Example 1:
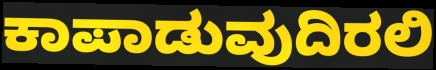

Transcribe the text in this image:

ಕಾಪಾಡುವುದಿರಲಿ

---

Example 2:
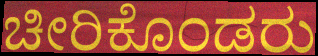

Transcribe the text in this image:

ಚೀರಿಕೊಂಡರು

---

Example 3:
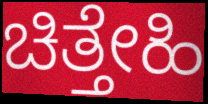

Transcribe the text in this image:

ಚಿತ್ತೇಹಿ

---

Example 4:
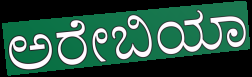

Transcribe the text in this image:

ಅರೇಬಿಯಾ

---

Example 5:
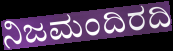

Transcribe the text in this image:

ನಿಜಮಂದಿರದಿ